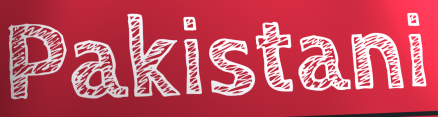
Pakistani